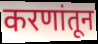
करणांतून